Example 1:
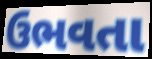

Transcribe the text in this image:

ઉભવતા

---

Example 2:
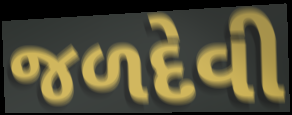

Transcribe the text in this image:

જળદેવી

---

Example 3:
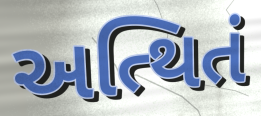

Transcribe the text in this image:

અત્થિતં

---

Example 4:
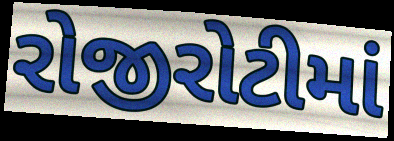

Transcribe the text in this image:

રોજીરોટીમાં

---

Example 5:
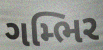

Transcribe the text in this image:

ગમ્ભિર